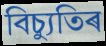
বিচ্যুতিৰ